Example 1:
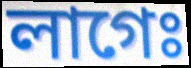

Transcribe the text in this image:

লাগেঃ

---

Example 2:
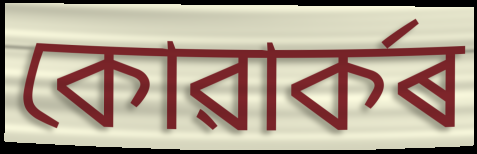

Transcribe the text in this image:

কোৱাৰ্কৰ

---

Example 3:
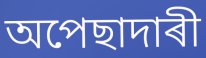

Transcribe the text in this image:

অপেছাদাৰী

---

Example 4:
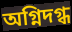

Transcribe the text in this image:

অগ্নিদগ্ধ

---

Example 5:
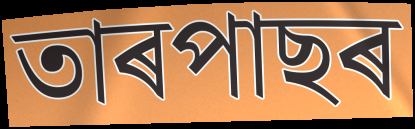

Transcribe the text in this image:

তাৰপাছৰ